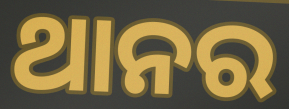
ଥାନର